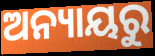
ଅନ୍ୟାୟରୁ